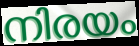
നിരയം